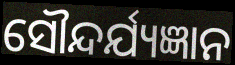
ସୌନ୍ଦର୍ଯ୍ୟଜ୍ଞାନ